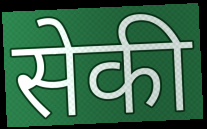
सेकी